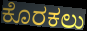
ಕೊರಕಲು